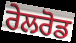
ਰੇਲਰੋਡ